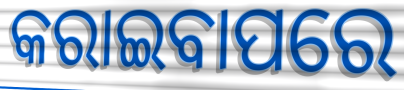
କରାଇବାପରେ